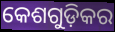
କେଶଗୁଡ଼ିକର